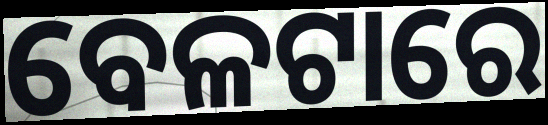
ବେଳଟାରେ